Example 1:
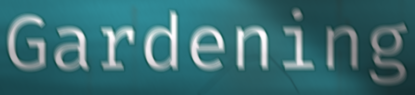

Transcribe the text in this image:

Gardening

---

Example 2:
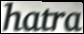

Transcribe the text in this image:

hatra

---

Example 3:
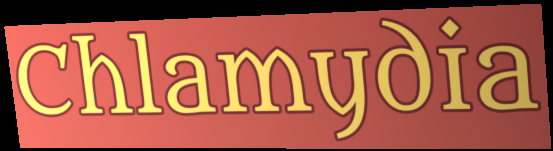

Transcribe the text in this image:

Chlamydia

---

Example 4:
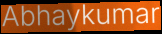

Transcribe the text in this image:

Abhaykumar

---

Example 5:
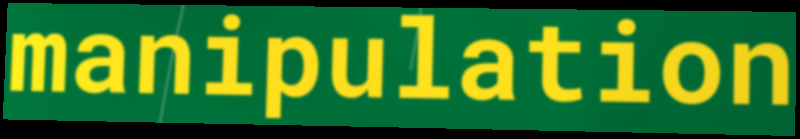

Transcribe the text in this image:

manipulation